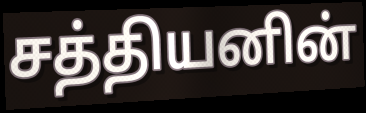
சத்தியனின்